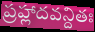
ప్రహ్లాదవన్దితః